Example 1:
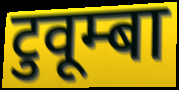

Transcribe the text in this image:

टुवूम्बा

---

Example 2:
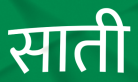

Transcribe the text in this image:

साती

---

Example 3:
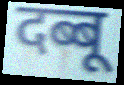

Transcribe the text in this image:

दब्बू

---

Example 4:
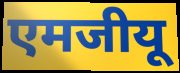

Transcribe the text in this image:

एमजीयू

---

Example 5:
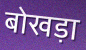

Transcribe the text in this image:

बोखड़ा